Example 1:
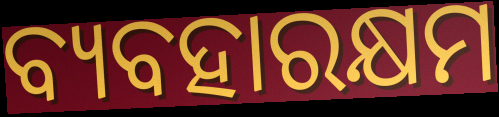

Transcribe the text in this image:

ବ୍ୟବହାରକ୍ଷମ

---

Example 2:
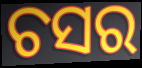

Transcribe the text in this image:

ଚସର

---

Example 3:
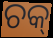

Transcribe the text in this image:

ଚକ୍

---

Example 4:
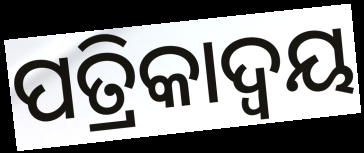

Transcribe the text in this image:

ପତ୍ରିକାଦ୍ୱୟ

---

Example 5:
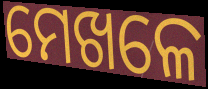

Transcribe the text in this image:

ମେଖଳେ